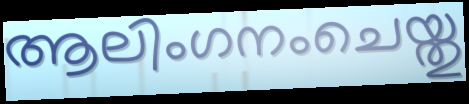
ആലിംഗനംചെയ്തു